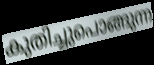
കുതിച്ചുപൊങ്ങുന്ന